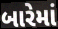
બારેમાં